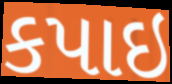
કપાઇ